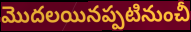
మొదలయినప్పటినుంచీ